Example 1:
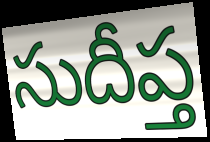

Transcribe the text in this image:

సుదీప్త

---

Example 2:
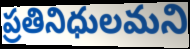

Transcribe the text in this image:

ప్రతినిధులమని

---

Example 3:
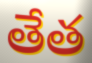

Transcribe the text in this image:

తేత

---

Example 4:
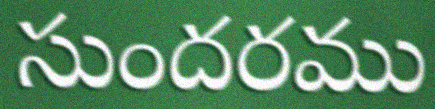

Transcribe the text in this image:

సుందరము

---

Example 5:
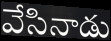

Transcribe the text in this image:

వేసినాడు